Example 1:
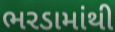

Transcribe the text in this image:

ભરડામાંથી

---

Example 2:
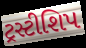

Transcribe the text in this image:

ટ્રસ્ટીશિપ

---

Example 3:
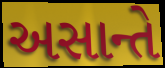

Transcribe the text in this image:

અસાન્તે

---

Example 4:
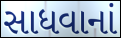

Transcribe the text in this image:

સાધવાનાં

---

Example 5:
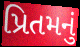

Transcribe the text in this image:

પ્રિતમનું